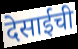
देसाईची